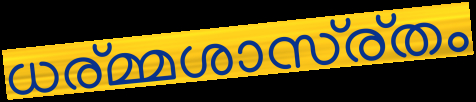
ധര്മ്മശാസ്ര്തം